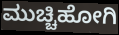
ಮುಚ್ಚಿಹೋಗಿ